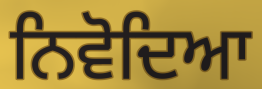
ਨਿਵੋਦਿਆ